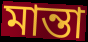
মান্তা